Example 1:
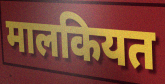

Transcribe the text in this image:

मालकियत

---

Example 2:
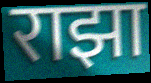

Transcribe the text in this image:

राझा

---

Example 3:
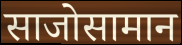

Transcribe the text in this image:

साजोसामान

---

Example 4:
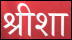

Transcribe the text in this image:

श्रीशा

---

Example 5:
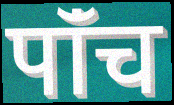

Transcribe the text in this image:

पॉंच